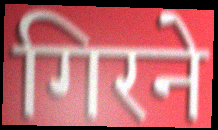
गिरने